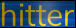
hitter